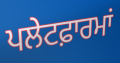
ਪਲੇਟਫ਼ਾਰਮਾਂ